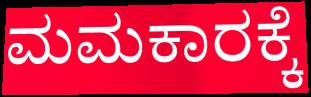
ಮಮಕಾರಕ್ಕೆ